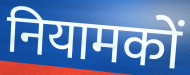
नियामकों